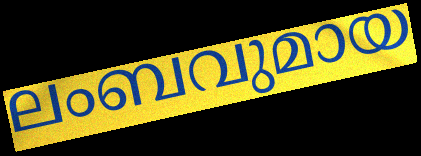
ലംബവുമായ